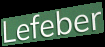
Lefeber